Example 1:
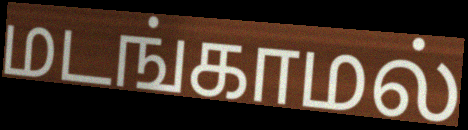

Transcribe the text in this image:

மடங்காமல்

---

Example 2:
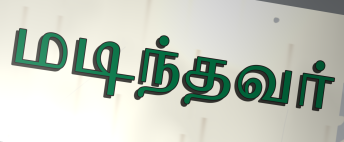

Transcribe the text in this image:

மடிந்தவர்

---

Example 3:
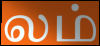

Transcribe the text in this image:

லம்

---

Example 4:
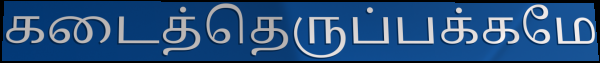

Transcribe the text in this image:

கடைத்தெருப்பக்கமே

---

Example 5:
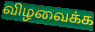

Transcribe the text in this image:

விழவைக்க